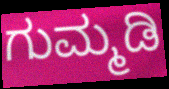
ಗುಮ್ಮಡಿ